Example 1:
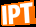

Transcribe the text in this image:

IPT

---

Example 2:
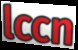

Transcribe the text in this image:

lccn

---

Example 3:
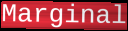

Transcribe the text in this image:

Marginal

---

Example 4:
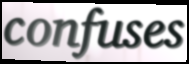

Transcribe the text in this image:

confuses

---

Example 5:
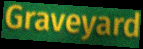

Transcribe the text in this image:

Graveyard